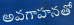
అవగాహనతో